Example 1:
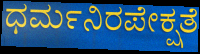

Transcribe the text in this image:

ಧರ್ಮನಿರಪೇಕ್ಷತೆ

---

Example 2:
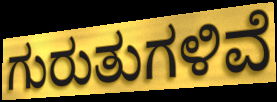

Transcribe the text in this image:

ಗುರುತುಗಳಿವೆ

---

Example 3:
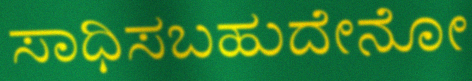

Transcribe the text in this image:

ಸಾಧಿಸಬಹುದೇನೋ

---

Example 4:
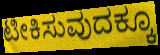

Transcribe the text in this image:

ಟೀಕಿಸುವುದಕ್ಕೂ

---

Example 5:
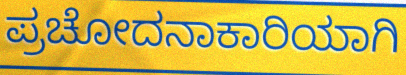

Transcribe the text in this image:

ಪ್ರಚೋದನಾಕಾರಿಯಾಗಿ